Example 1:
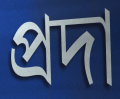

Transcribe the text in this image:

প্রদা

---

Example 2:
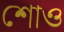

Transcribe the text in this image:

শোও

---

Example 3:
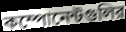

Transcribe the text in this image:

কম্পোনেন্টগুলির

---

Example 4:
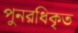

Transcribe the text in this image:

পুনরধিকৃত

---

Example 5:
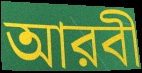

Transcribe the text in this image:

আরবী